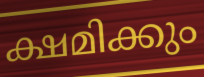
ക്ഷമിക്കും